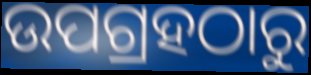
ଉପଗ୍ରହଠାରୁ